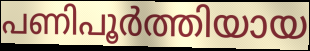
പണിപൂർത്തിയായ